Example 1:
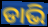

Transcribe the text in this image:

ଡାଭି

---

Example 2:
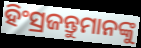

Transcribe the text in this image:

ହିଂସ୍ରଜନ୍ତୁମାନଙ୍କୁ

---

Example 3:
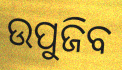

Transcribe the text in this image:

ଉପୁଜିବ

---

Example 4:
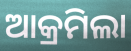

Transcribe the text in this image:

ଆକ୍ରମିଲା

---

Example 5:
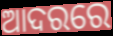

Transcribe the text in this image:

ଆଦରରେ